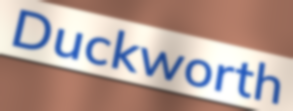
Duckworth